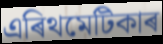
এৰিথমেটিকাৰ